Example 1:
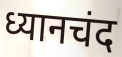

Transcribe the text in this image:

ध्यानचंद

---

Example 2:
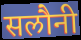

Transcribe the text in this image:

सलौनी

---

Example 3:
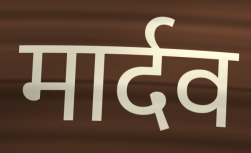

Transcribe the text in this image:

मार्दव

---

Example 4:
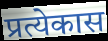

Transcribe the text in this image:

प्रत्येकास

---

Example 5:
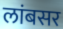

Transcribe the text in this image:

लांबसर